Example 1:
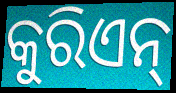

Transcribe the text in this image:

କୁରିଏନ୍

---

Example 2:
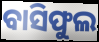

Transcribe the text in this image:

ବାସିଫୁଲ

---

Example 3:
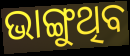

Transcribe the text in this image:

ଭାଙ୍ଗୁଥିବ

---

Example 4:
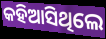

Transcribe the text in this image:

କହିଆସିଥିଲେ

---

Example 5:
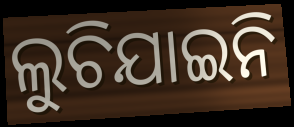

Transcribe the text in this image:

ଲୁଚିଯାଇନି